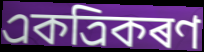
একত্ৰিকৰণ